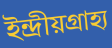
ইন্দ্রীয়গ্রাহ্য